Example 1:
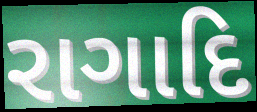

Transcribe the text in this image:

રાગાદિ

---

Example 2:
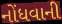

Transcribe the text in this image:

નોંધવાની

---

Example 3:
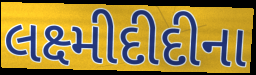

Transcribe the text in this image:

લક્ષ્મીદીદીના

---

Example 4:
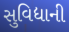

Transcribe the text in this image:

સુવિદ્યાની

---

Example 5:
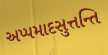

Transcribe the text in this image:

અપ્પમાદસુત્તન્તિ